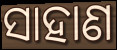
ସାହାଣ